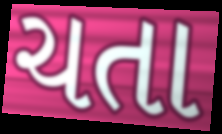
ચતા